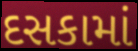
દસકામાં